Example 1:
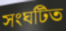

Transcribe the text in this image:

সংঘটিত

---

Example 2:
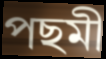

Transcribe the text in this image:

পছমী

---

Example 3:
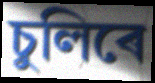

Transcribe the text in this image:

চুলিৰে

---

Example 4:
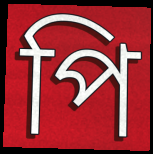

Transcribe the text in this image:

পি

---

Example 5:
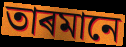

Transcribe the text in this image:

তাৰমানে